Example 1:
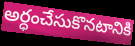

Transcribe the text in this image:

అర్ధంచేసుకొనటానికి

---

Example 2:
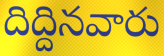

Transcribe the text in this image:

దిద్దినవారు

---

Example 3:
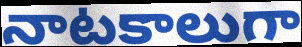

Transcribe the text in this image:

నాటకాలుగా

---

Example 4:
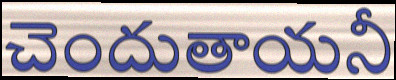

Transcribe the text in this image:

చెందుతాయనీ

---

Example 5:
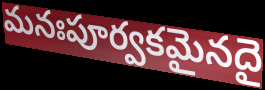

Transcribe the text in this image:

మనఃపూర్వకమైనదై